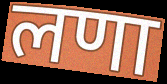
लणा